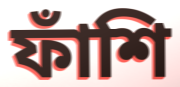
ফাঁশি